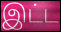
இட்ட